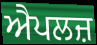
ਐਪਲਜ਼